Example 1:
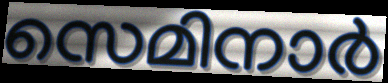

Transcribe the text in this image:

സെമിനാർ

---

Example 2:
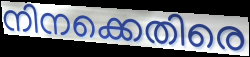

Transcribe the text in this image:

നിനക്കെതിരെ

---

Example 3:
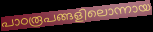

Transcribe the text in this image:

പാഠരൂപങ്ങളിലൊന്നായ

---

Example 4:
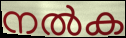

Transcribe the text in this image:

നൽക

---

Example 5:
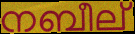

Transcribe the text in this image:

നബീല്